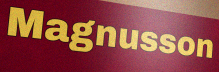
Magnusson